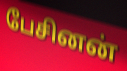
பேசினன்